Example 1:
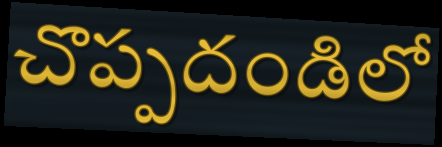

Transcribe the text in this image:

చొప్పదండిలో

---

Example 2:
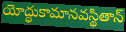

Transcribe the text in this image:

యోద్ధుకామానవస్థితాన్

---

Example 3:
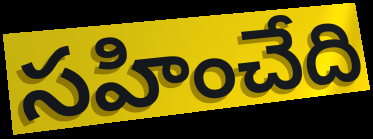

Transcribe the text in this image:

సహించేది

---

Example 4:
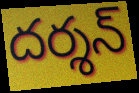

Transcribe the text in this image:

దర్శన్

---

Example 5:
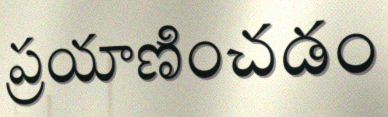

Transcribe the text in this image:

ప్రయాణించడం